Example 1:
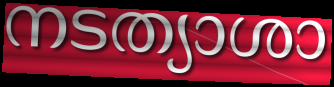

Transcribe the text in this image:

നടത്യാശാ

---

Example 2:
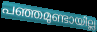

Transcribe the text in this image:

പഞ്ഞമുണ്ടായില്ല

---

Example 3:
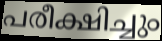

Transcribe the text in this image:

പരീക്ഷിച്ചും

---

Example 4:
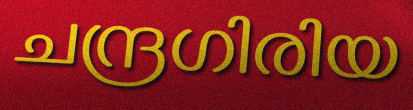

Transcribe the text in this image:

ചന്ദ്രഗിരിയ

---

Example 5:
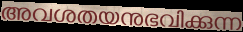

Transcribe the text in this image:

അവശതയനുഭവിക്കുന്ന